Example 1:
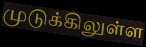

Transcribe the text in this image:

முடுக்கிலுள்ள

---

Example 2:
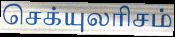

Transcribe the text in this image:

செக்யுலரிசம்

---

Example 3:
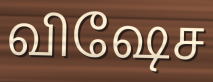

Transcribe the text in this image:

விஷேச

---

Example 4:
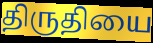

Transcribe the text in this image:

திருதியை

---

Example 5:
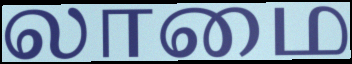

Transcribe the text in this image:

லாமை